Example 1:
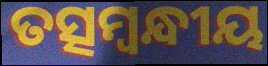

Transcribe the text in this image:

ତତ୍ସମ୍ବନ୍ଧୀୟ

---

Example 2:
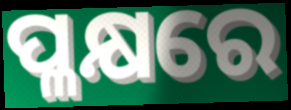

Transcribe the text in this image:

ପ୍ଳକ୍ଷରେ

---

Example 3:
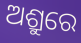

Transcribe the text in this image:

ଅଶ୍ରୁରେ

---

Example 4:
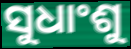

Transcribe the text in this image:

ସୁଧାଂଶୁ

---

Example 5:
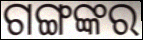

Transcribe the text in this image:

ଗଙ୍ଗଙ୍କର